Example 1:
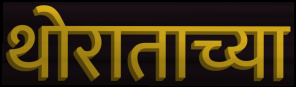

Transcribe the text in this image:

थोराताच्या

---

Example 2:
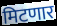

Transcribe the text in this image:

मिटणार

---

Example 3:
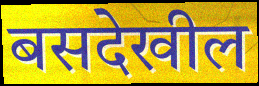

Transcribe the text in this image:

बसदेखील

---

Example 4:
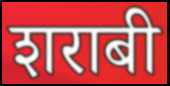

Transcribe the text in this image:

शराबी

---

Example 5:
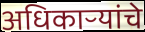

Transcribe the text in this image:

अधिकाऱ्यांचे